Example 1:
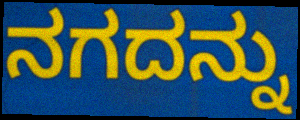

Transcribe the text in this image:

ನಗದನ್ನು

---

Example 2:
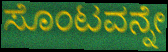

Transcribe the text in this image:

ಸೊಂಟವನ್ನೇ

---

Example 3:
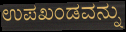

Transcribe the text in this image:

ಉಪಖಂಡವನ್ನು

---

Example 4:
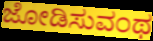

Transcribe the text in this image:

ಜೋಡಿಸುವಂಥ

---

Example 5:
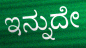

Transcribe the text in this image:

ಇನ್ನುದೇ